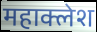
महाक्लेश